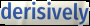
derisively